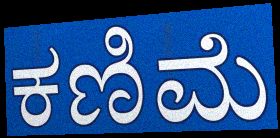
ಕಣಿಮೆ